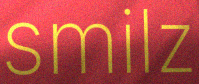
smilz